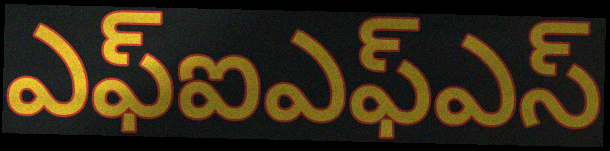
ఎఫ్ఐఎఫ్ఎస్